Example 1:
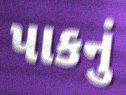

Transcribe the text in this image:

પાકનું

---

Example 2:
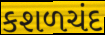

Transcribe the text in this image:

કશળચંદ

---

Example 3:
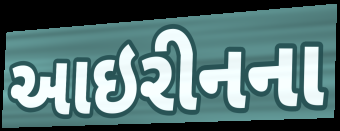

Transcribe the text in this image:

આઇરીનના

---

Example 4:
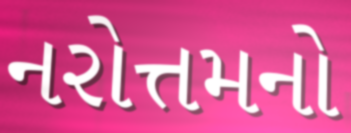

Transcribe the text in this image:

નરોત્તમનો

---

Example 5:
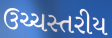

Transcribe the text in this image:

ઉચ્ચસ્તરીય